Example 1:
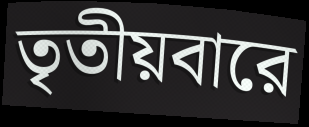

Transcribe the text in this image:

তৃতীয়বারে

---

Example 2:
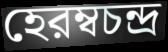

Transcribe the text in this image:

হেরম্বচন্দ্র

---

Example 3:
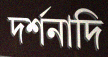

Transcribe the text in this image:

দর্শনাদি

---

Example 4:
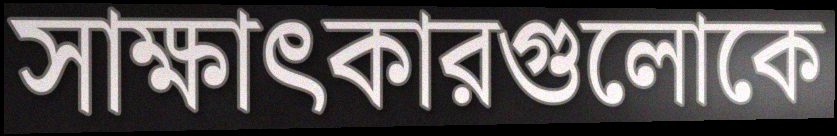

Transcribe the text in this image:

সাক্ষাৎকারগুলোকে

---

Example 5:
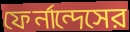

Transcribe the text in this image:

ফের্নান্দেসের